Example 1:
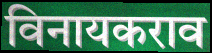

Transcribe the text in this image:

विनायकराव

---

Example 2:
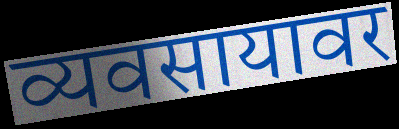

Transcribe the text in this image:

व्यवसायावर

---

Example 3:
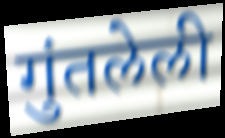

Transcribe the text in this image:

गुंतलेली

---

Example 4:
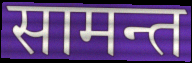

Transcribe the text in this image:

सामन्त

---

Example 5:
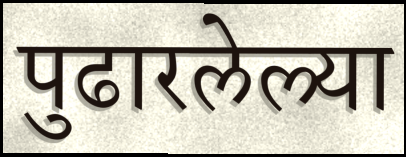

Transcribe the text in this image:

पुढारलेल्या